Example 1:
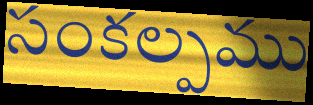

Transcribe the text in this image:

సంకల్పము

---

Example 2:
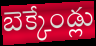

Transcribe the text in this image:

బెక్కేండ్లు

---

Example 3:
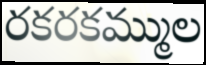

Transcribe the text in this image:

రకరకమ్ముల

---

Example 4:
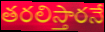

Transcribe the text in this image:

తరలిస్తారనే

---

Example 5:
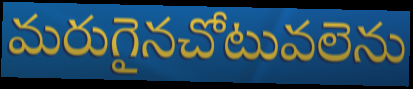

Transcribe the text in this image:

మరుగైనచోటువలెను